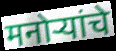
मनोऱ्यांचे